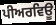
ਪੀਅਰਵਿਊ